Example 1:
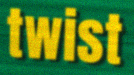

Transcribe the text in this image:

twist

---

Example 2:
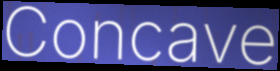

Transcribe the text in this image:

Concave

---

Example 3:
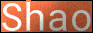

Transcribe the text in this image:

Shao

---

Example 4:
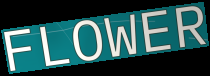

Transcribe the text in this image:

FLOWER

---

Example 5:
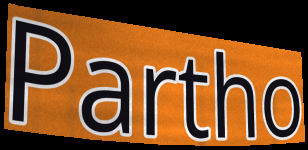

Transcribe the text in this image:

Partho